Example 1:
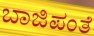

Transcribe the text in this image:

ಬಾಜಿಪಂತೆ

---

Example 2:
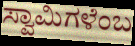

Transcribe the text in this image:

ಸ್ವಾಮಿಗಳೆಂಬ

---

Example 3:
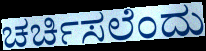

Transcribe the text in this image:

ಚರ್ಚಿಸಲೆಂದು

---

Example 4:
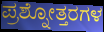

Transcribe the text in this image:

ಪ್ರಶ್ನೋತ್ತರಗಳ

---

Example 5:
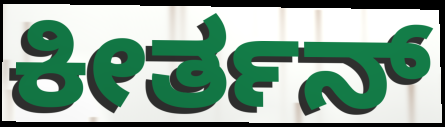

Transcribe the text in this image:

ಕೀರ್ತನ್